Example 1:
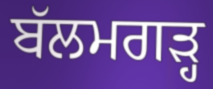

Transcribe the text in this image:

ਬੱਲਮਗੜ੍ਹ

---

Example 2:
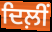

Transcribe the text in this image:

ਦਿਲ਼ੀਂ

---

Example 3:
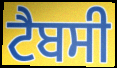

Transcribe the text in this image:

ਟੈਬਸੀ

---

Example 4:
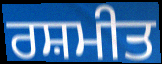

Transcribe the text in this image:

ਰਸ਼ਮੀਤ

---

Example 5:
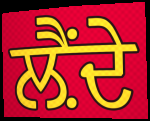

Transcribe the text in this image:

ਲ਼ੈਂਦੇ